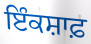
ਇੰਕਸ਼ਾਫ਼